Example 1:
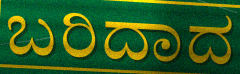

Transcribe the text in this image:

ಬರಿದಾದ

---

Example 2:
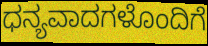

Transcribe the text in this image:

ಧನ್ಯವಾದಗಳೊಂದಿಗೆ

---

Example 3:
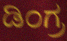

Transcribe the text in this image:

ಡಿಂಗ್ರ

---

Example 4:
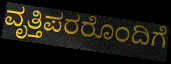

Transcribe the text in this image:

ವೃತ್ತಿಪರರೊಂದಿಗೆ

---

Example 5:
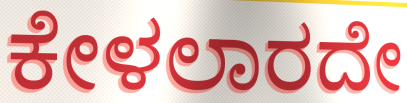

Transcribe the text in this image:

ಕೇಳಲಾರದೇ